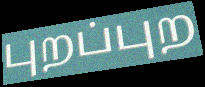
புறப்புற